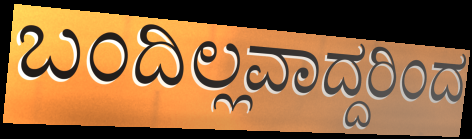
ಬಂದಿಲ್ಲವಾದ್ದರಿಂದ